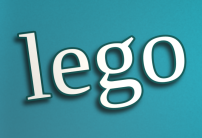
lego